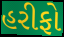
હરીફો